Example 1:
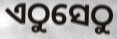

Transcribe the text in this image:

ଏଠୁସେଠୁ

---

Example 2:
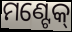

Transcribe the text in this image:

ମଣ୍ଟେକ୍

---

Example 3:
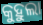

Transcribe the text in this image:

କୁହୁଲା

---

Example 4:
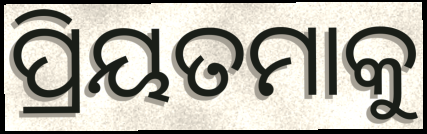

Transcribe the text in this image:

ପ୍ରିୟତମାକୁ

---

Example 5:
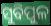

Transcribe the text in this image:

ସୁବିପୁଳ